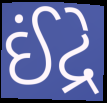
ઈંદ્રે